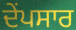
ਦੇਂਪਸਾਰ